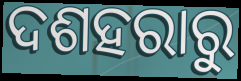
ଦଶହରାରୁ